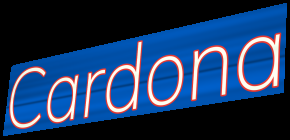
Cardona